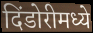
दिंडोरीमध्ये